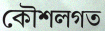
কৌশলগত